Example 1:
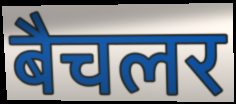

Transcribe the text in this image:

बैचलर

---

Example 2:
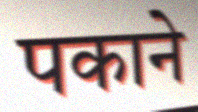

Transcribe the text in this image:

पकाने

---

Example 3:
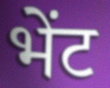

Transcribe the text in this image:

भेंट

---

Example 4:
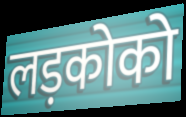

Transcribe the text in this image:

लड़कोको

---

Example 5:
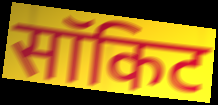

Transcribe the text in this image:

सॉकिट